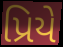
પ્રિયે